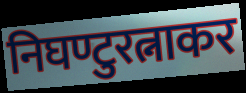
निघण्टुरत्नाकर